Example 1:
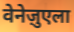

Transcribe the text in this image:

वेनेज़ुएला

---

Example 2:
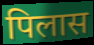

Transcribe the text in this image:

पिलास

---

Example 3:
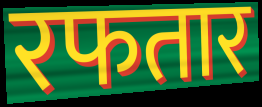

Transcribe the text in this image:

रफतार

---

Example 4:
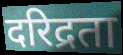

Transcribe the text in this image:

दरिद्रता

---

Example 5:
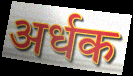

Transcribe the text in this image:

अर्धक